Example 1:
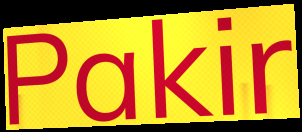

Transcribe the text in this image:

Pakir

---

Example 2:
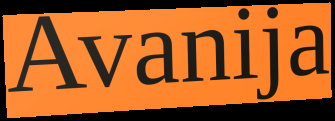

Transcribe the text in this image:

Avanija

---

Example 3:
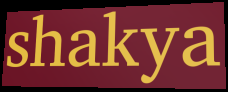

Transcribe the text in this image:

shakya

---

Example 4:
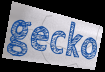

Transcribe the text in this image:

gecko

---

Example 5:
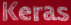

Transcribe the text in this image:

Keras